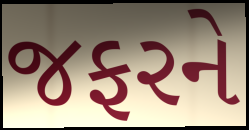
જફરને